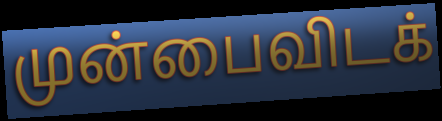
முன்பைவிடக்